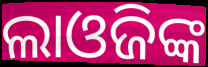
ଲାଓଜିଙ୍କ